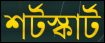
শর্টস্কার্ট